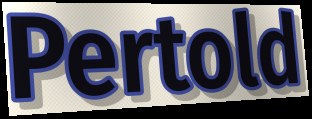
Pertold